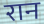
रान